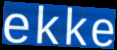
ekke